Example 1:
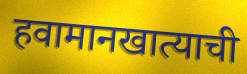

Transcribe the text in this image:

हवामानखात्याची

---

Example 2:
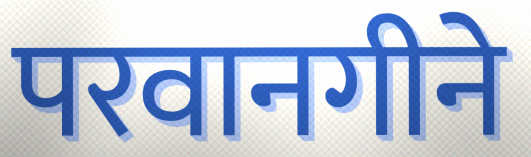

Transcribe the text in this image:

परवानगीने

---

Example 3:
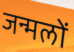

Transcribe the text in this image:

जन्मलों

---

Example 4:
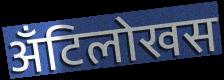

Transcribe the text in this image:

अँटिलोखस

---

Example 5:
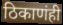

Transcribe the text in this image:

ठिकाणंही